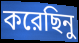
করেছিনু